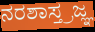
ನರಶಾಸ್ತ್ರಜ್ಞ